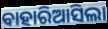
ବାହାରିଆସିଲା